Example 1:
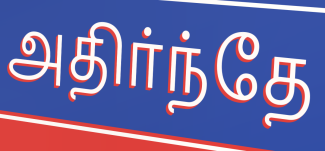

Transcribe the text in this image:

அதிர்ந்தே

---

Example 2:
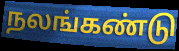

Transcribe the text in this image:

நலங்கண்டு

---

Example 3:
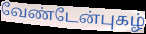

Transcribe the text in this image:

வேண்டேன்புகழ்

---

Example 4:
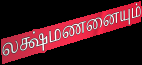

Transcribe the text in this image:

லக்ஷ்மணனையும்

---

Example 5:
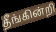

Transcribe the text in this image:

தீங்கின்றி